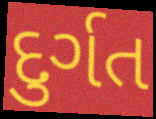
દુર્ગત